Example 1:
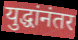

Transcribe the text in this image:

युद्धांनंतर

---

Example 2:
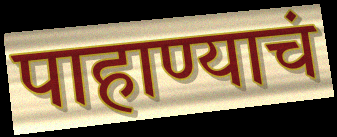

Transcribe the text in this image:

पाहाण्याचं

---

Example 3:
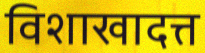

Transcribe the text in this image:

विशाखादत्त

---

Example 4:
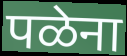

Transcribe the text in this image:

पळेना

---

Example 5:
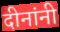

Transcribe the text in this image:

दीनांनी